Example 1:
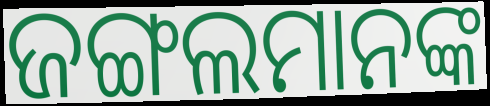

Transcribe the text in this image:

ଜଙ୍ଗଲମାନଙ୍କ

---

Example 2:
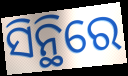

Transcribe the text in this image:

ସିନ୍ଥିରେ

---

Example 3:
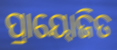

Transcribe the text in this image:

ପ୍ରାୟୋଜିତ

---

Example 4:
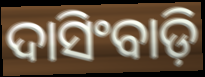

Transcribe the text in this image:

ଦାସିଂବାଡ଼ି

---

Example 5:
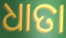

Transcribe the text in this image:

ଧାତା